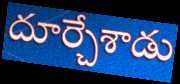
దూర్చేశాడు